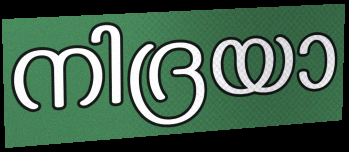
നിദ്രയാ